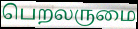
பெறலருமை